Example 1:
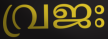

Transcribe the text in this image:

വ്രജഃ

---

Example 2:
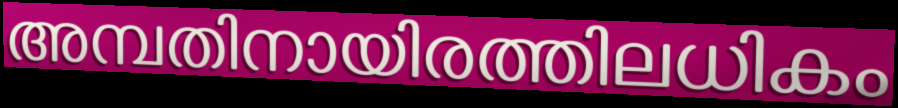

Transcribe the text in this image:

അമ്പതിനായിരത്തിലധികം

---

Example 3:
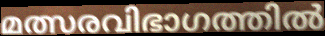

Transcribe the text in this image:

മത്സരവിഭാഗത്തിൽ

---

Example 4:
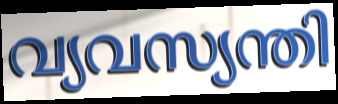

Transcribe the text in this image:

വ്യവസ്യന്തി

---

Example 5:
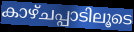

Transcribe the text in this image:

കാഴ്ചപ്പാടിലൂടെ